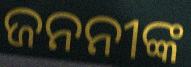
ଜନନୀଙ୍କ